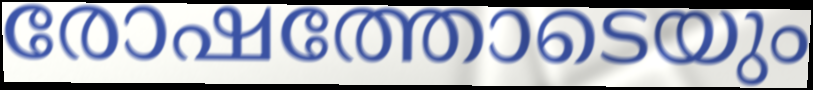
രോഷത്തോടെയും